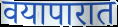
वयापारात